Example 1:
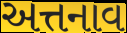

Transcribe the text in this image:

અત્તનાવ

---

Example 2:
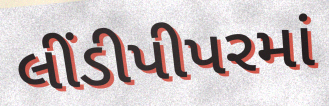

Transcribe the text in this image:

લીંડીપીપરમાં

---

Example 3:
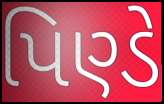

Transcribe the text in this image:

પિણ્ડે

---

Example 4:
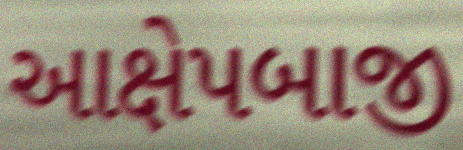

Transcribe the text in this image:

આક્ષેપબાજી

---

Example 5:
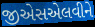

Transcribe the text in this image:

જીએસએલવીને